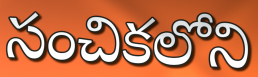
సంచికలోని